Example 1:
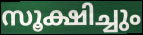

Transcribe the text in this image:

സൂക്ഷിച്ചും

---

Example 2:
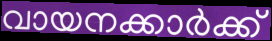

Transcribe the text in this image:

വായനക്കാർക്ക്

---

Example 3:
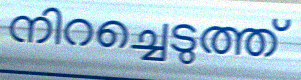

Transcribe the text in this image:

നിറച്ചെടുത്ത്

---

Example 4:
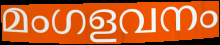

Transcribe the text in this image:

മംഗളവനം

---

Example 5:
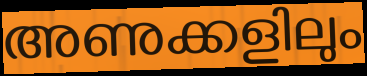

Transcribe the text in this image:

അണുക്കളിലും